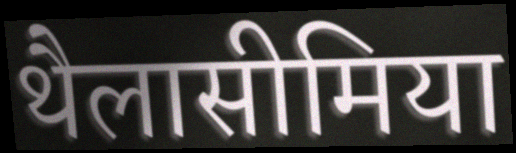
थैलासीमिया